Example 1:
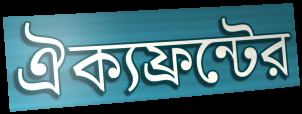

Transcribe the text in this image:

ঐক্যফ্রন্টের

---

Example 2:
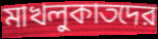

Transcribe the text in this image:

মাখলুকাতদের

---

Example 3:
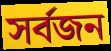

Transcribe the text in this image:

সর্বজন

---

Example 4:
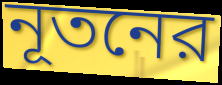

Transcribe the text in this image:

নূতনের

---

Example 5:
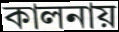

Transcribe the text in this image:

কালনায়